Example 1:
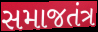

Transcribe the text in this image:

સમાજતંત્ર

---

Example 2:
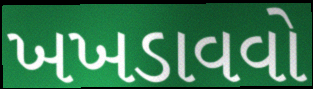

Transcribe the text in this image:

ખખડાવવો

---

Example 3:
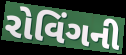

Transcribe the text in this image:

રોવિંગની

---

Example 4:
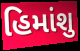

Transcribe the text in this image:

હિમાંશુ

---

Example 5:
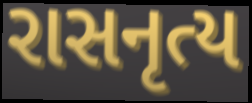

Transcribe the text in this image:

રાસનૃત્ય